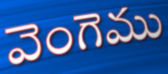
వెంగెము